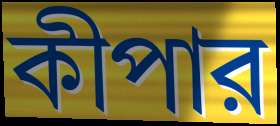
কীপার